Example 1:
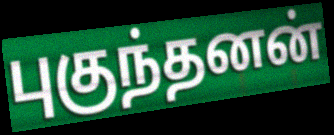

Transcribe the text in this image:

புகுந்தனன்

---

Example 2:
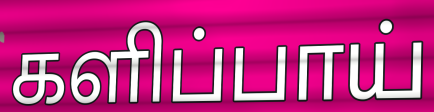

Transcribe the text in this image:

களிப்பாய்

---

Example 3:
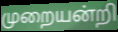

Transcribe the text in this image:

முறையன்றி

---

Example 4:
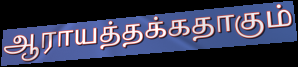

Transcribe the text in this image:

ஆராயத்தக்கதாகும்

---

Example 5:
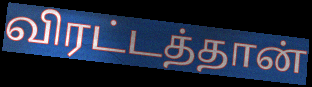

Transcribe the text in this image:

விரட்டத்தான்